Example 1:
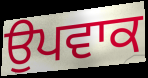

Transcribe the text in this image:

ਉਪਵਾਕ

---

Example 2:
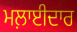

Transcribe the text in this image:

ਮਲ਼ਾਈਦਾਰ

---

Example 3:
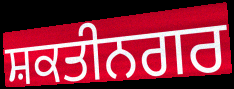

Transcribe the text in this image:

ਸ਼ਕਤੀਨਗਰ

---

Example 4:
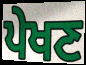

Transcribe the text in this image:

ਪੇਖਣ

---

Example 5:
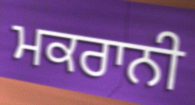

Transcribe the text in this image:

ਮਕਰਾਨੀ